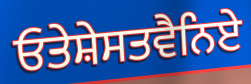
ਓਤੇਸ਼ੇਸਤਵੈਨਿਏ